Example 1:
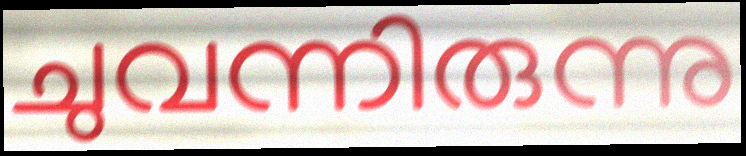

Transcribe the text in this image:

ചുവന്നിരുന്നു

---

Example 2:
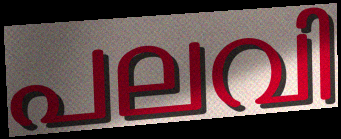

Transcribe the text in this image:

പലവി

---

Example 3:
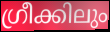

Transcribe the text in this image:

ഗ്രീക്കിലും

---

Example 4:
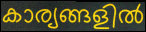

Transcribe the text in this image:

കാര്യങ്ങളിൽ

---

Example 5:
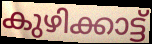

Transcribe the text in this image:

കുഴിക്കാട്ട്